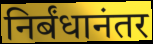
निर्बंधानंतर